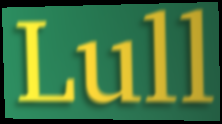
Lull